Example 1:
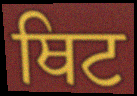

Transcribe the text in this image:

ਥਿਟ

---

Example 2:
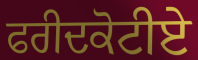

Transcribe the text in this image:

ਫਰੀਦਕੋਟੀਏ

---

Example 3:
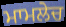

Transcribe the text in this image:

ਮਾਮਲੇਚ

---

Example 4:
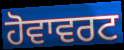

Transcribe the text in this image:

ਹੋਵਾਵਰਟ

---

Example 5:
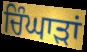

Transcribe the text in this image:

ਚਿੰਘਾੜਾਂ